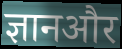
ज्ञानऔर